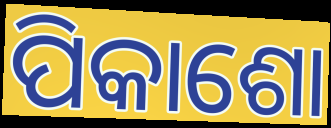
ପିକାଶୋ